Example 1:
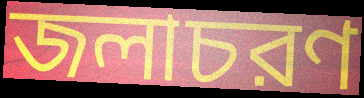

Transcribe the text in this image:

জলাচরণ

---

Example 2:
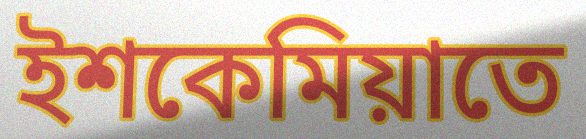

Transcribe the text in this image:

ইশকেমিয়াতে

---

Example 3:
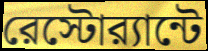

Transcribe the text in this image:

রেস্টোর‍্যান্টে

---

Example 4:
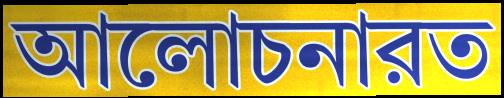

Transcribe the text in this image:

আলোচনারত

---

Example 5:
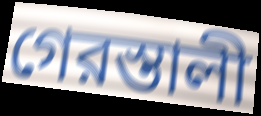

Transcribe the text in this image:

গেরস্তালী